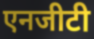
एनजीटी